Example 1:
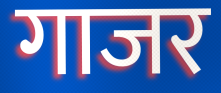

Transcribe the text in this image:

गाजर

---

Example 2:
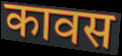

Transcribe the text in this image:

कावस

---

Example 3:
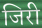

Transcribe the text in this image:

जिरी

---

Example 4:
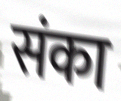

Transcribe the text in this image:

संका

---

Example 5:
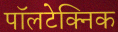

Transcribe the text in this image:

पॉलटेक्निक